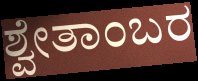
ಶ್ವೇತಾಂಬರ